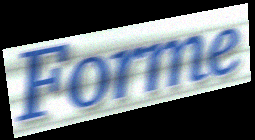
Forme